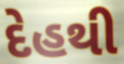
દેહથી